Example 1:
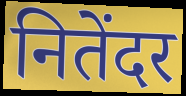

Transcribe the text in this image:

नितेंदर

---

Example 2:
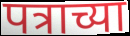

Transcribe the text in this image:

पत्राच्या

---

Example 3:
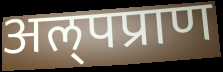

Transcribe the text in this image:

अल्पप्राण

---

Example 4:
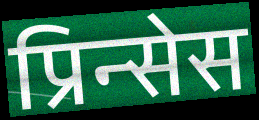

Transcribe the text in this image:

प्रिन्सेस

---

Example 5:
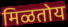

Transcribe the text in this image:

मिळतोय